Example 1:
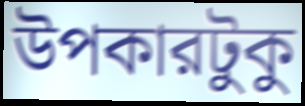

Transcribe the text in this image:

উপকারটুকু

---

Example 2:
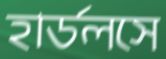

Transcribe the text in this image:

হার্ডলসে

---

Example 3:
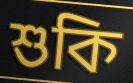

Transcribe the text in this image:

শুকি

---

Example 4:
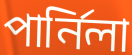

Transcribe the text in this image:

পার্নিলা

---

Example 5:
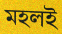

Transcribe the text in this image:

মহলই